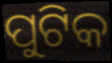
ପୁଟିକ